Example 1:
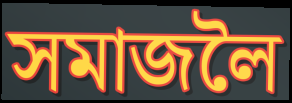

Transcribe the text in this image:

সমাজলৈ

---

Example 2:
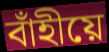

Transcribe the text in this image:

বাঁহীয়ে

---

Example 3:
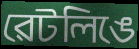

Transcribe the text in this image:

ৱেটলিঙে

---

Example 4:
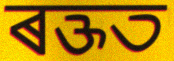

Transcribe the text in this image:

ৰক্তত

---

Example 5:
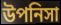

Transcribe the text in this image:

উপনিসা